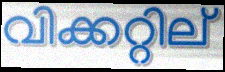
വിക്കറ്റില്